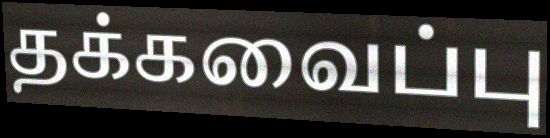
தக்கவைப்பு